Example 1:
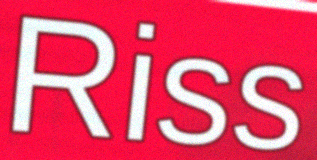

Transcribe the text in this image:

Riss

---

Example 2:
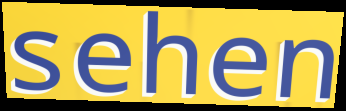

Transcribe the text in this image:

sehen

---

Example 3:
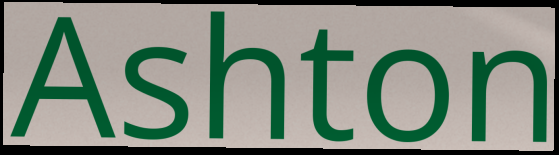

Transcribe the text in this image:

Ashton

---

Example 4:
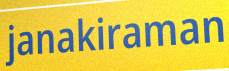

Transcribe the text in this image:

janakiraman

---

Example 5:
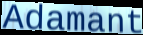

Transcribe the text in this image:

Adamant